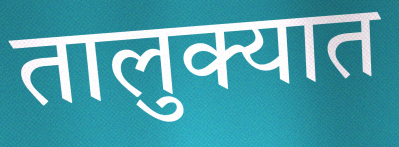
तालुक्यात